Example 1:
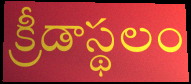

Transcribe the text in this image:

క్రీడాస్థలం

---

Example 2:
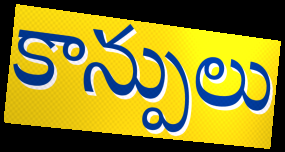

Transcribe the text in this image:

కాన్పులు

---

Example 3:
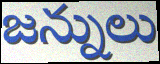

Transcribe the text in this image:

జన్నులు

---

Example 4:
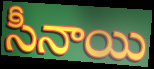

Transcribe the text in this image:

సీనాయి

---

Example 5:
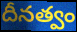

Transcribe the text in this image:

దీనత్వం